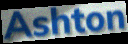
Ashton